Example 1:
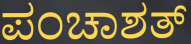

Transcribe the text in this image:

ಪಂಚಾಶತ್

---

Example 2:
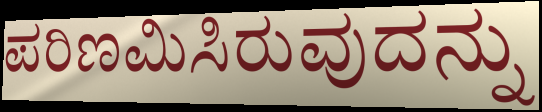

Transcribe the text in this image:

ಪರಿಣಮಿಸಿರುವುದನ್ನು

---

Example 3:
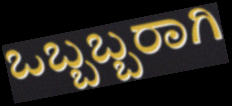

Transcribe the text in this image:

ಒಬ್ಬಬ್ಬರಾಗಿ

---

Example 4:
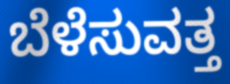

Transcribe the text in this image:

ಬೆಳೆಸುವತ್ತ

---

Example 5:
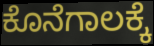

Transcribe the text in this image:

ಕೊನೆಗಾಲಕ್ಕೆ